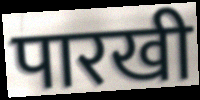
पारखी